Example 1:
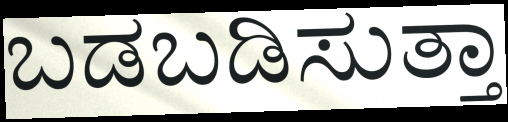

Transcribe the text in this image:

ಬಡಬಡಿಸುತ್ತಾ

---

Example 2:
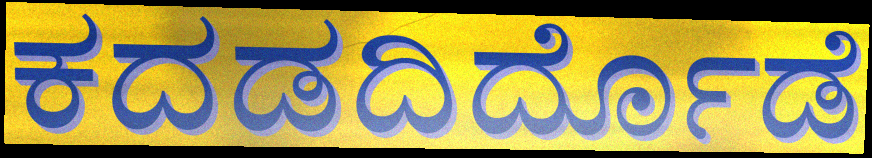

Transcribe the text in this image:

ಕದಡದಿರ್ದೊಡೆ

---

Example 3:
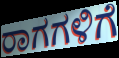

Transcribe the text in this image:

ರಾಗಗಳಿಗೆ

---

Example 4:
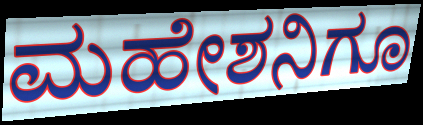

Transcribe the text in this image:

ಮಹೇಶನಿಗೂ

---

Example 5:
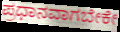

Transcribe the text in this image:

ಪ್ರಧಾನವಾಗಬೇಕೇ